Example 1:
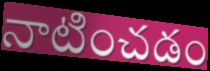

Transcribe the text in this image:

నాటించడం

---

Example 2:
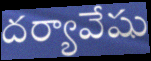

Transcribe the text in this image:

దర్యావేషు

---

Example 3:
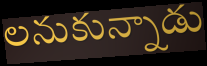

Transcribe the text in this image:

లనుకున్నాడు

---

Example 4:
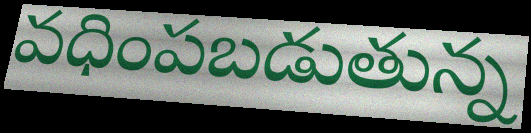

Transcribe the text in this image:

వధింపబడుతున్న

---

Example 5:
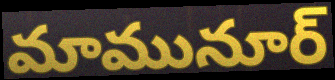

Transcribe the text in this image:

మామునూర్